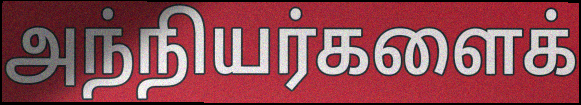
அந்நியர்களைக்